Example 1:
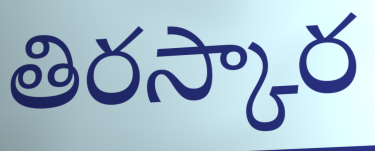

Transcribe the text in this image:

తిరస్కార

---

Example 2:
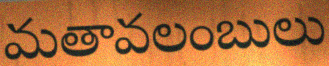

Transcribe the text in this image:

మతావలంబులు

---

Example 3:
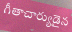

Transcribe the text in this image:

గీతాచార్యుడైన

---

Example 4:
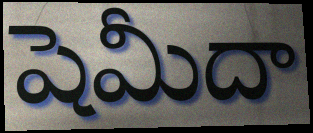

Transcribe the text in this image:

షెమీదా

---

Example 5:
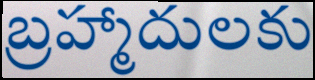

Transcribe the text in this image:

బ్రహ్మాదులకు